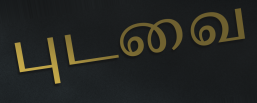
புடவை